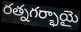
రత్నగర్భాయై